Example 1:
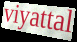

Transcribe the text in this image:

viyattal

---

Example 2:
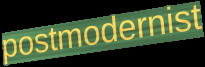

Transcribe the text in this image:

postmodernist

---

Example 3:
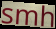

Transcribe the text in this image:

smh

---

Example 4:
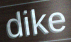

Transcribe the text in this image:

dike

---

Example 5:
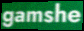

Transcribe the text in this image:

gamshe